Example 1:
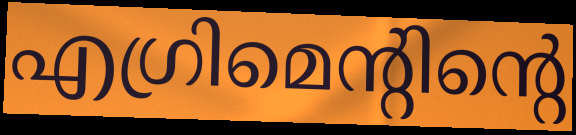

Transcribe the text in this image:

എഗ്രിമെന്റിന്റെ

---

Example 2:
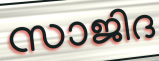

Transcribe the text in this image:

സാജിദ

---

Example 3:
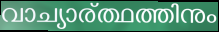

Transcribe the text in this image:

വാച്യാര്ത്ഥത്തിനും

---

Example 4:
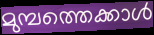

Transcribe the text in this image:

മുമ്പത്തെക്കാൾ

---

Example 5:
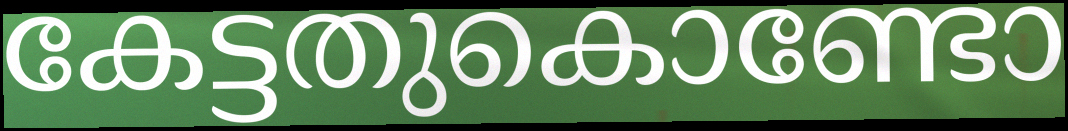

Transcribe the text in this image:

കേട്ടതുകൊണ്ടോ